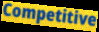
Competitive